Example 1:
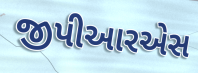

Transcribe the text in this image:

જીપીઆરએસ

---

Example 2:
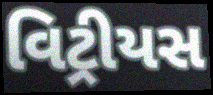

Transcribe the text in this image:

વિટ્રીયસ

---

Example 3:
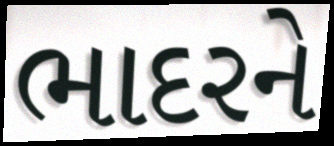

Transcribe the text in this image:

ભાદરને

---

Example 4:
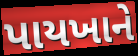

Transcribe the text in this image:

પાયખાને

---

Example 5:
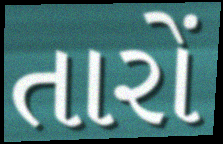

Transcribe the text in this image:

તારોં